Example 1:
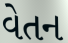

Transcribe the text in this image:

વેતન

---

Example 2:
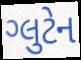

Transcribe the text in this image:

ગ્લુટેન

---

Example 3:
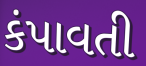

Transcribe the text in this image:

કંપાવતી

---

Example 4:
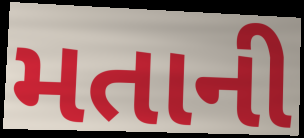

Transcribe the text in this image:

મતાની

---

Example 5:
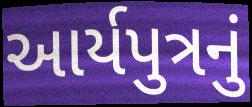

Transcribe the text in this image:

આર્યપુત્રનું